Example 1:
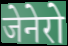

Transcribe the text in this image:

जेनेरो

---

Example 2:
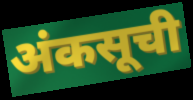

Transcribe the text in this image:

अंकसूची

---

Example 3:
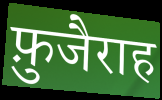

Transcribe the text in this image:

फ़ुजैराह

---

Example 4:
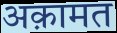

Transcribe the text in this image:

अक़ामत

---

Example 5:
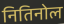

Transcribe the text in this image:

नितिनोल